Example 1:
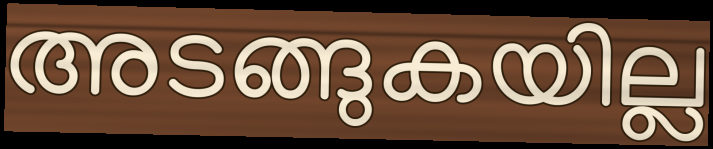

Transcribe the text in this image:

അടങ്ങുകയില്ല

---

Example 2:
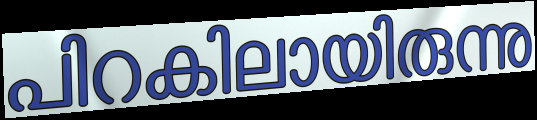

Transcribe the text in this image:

പിറകിലായിരുന്നു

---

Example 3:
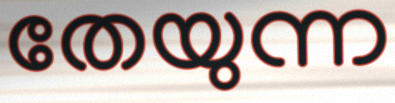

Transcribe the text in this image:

തേയുന്ന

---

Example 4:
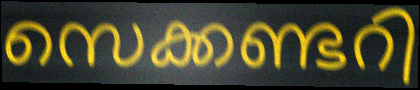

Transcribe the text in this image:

സെക്കണ്ടറി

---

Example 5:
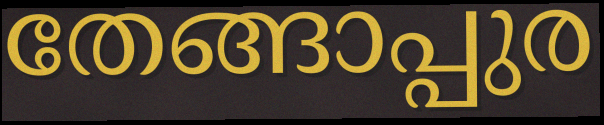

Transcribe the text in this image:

തേങ്ങാപ്പുര